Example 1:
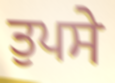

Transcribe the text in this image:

ਤੁਪਸੇ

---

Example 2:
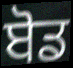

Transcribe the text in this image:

ਬੋਡ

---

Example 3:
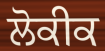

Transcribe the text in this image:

ਲੋਕੀਕ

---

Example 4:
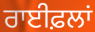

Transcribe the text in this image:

ਰਾਈਫ਼ਲਾਂ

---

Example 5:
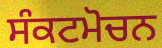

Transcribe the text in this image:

ਸੰਕਟਮੋਚਨ